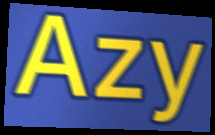
Azy